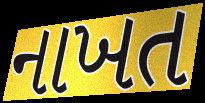
નાખત